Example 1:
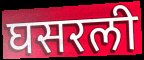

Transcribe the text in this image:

घसरली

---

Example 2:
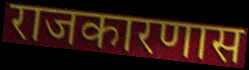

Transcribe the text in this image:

राजकारणास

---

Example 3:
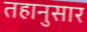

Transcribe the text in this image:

तहानुसार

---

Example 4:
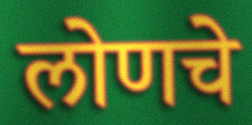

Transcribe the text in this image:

लोणचे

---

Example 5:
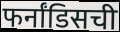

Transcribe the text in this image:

फर्नांडिसची